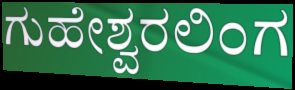
ಗುಹೇಶ್ವರಲಿಂಗ